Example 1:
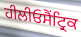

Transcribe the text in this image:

ਹੀਲੀਓਸੈਂਟ੍ਰਿਕ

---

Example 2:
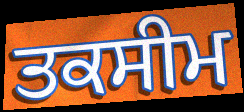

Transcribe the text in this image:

ਤਕਸੀਮ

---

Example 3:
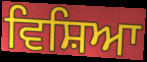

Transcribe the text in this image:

ਵਿਸ਼ਿਆ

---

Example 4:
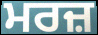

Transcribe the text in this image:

ਮਰਜ਼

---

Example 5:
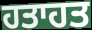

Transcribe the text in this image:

ਹਤਾਹਤ